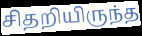
சிதறியிருந்த